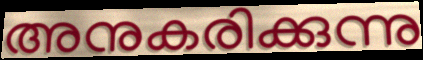
അനുകരിക്കുന്നു